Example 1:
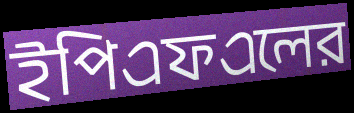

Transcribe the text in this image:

ইপিএফএলের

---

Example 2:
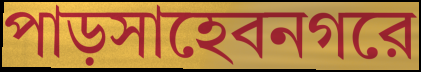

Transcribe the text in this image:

পাড়সাহেবনগরে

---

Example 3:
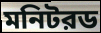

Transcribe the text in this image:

মনিটরড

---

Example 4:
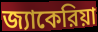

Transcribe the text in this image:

জ্যাকেরিয়া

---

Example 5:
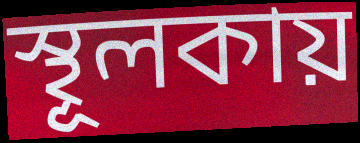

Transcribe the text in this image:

স্থূলকায়